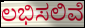
ಲಭಿಸಲಿವೆ